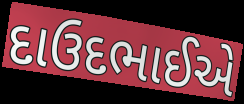
દાઉદભાઈએ